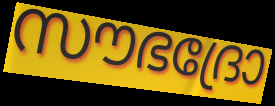
സൗഭദ്രോ